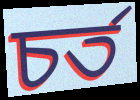
চৰ্ত